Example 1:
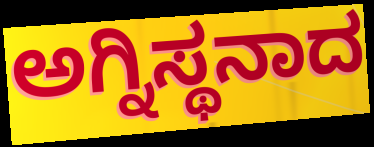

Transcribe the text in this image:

ಅಗ್ನಿಸ್ಥನಾದ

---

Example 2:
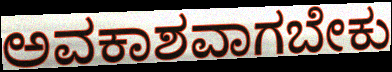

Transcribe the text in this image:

ಅವಕಾಶವಾಗಬೇಕು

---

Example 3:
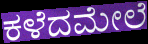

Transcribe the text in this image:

ಕಳೆದಮೇಲೆ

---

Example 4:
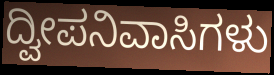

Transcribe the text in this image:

ದ್ವೀಪನಿವಾಸಿಗಳು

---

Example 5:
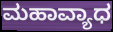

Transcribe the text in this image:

ಮಹಾವ್ಯಾಧ